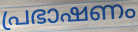
പ്രഭാഷണം